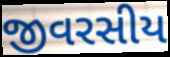
જીવરસીય